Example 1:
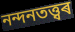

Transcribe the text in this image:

নন্দনতত্ত্বৰ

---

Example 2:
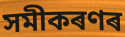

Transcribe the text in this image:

সমীকৰণৰ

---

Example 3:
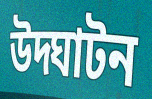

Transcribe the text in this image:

উদ্ঘাটন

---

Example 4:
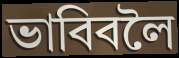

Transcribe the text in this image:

ভাবিবলৈ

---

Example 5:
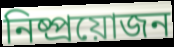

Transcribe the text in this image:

নিষ্প্ৰয়োজন